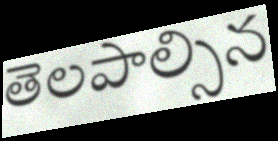
తెలపాల్సిన